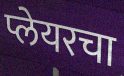
प्लेयरचा